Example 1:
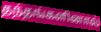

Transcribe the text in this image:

தந்தங்களினால்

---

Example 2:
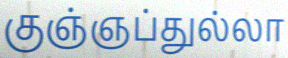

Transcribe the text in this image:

குஞ்ஞப்துல்லா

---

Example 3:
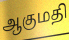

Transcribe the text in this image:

ஆகுமதி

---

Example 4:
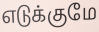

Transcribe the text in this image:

எடுக்குமே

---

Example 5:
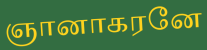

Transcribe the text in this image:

ஞானாகரனே